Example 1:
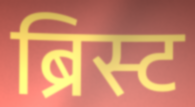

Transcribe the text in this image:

ब्रिस्ट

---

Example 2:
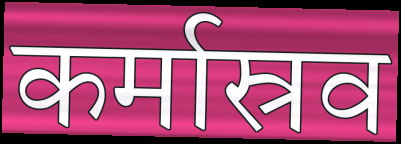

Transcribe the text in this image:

कर्मास्रव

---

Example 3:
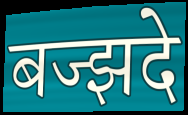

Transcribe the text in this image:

बज्झदे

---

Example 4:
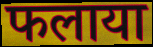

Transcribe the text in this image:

फलाया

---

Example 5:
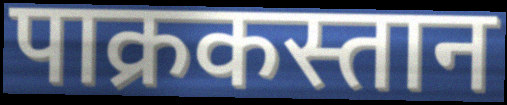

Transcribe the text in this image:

पाक्रकस्तान